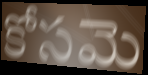
కోసమె